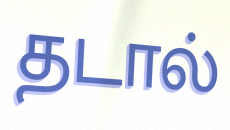
தடால்